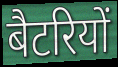
बैटरियों